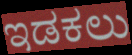
ಇಡಕಲು